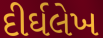
દીર્ઘલેખ